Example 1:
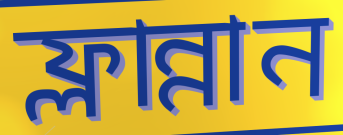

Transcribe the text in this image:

ফ্লান্নান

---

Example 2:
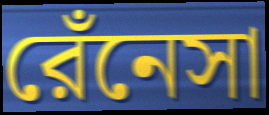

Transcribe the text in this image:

রেঁনেসা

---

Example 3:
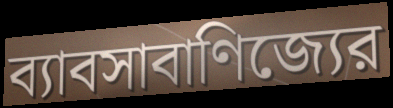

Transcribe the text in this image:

ব্যাবসাবাণিজ্যের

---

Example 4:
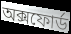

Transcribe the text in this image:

অক্সফোর্ড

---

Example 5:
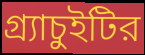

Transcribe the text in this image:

গ্র্যাচুইটির